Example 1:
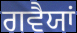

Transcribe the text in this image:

ਗਵੈਯਾਂ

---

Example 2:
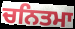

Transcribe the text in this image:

ਚਨਿਤਮਾ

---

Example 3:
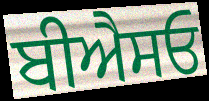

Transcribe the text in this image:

ਬੀਐਸਓ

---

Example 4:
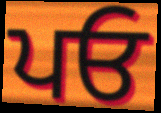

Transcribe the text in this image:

ਪਓ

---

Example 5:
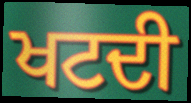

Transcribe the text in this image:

ਖਟਦੀ